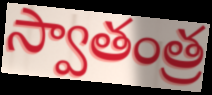
స్వాతంత్ర